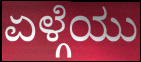
ಏಳ್ಗೆಯು